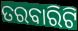
ତରବାରିଟି